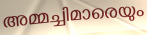
അമ്മച്ചിമാരെയും